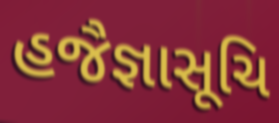
હજૈજ્ઞાસૂચિ